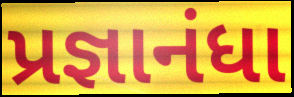
પ્રજ્ઞાનંધા